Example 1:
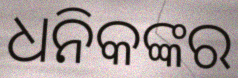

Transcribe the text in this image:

ଧନିକଙ୍କର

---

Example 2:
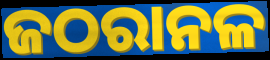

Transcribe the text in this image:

ଜଠରାନଳ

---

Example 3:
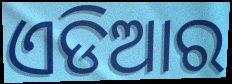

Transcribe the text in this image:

ଏଡିଆର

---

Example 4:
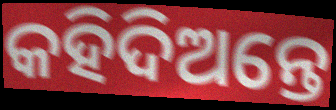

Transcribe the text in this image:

କହିଦିଅନ୍ତେ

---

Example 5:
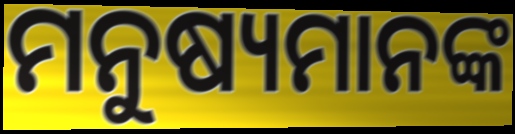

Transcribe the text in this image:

ମନୁଷ୍ୟମାନଙ୍କ